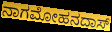
ನಾಗಮೋಹನದಾಸ್